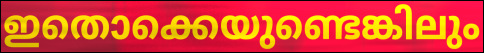
ഇതൊക്കെയുണ്ടെങ്കിലും